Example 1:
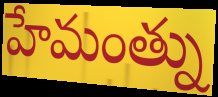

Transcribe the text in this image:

హేమంత్ను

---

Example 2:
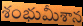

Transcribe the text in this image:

శంభుమీశాన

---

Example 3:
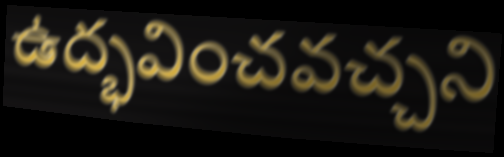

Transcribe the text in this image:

ఉద్భవించవచ్చని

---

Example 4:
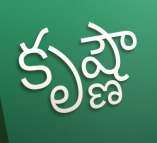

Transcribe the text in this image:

కృష్ణౌ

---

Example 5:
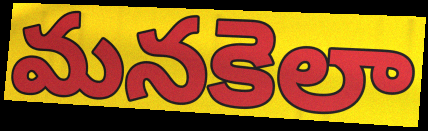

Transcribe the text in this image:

మనకెలా